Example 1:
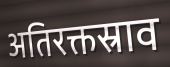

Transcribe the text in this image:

अतिरक्तस्राव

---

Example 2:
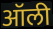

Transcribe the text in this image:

ऑली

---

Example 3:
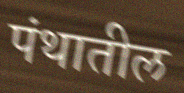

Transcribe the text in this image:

पंथातील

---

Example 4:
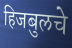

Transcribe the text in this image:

हिजबुलचे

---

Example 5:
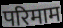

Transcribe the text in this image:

परिमाम